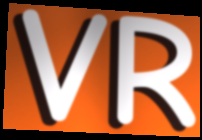
VR